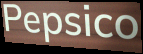
Pepsico